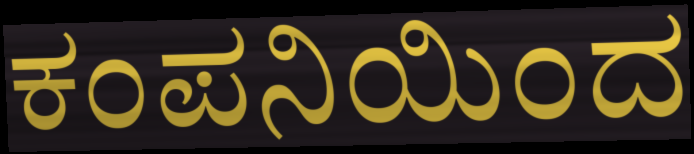
ಕಂಪನಿಯಿಂದ